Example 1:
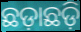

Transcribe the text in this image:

ଛଡ଼ାଛଡ଼ି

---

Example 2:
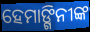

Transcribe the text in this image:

ହେମାଙ୍ଗିନୀଙ୍କ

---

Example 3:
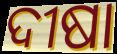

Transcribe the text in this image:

ଦୀଷା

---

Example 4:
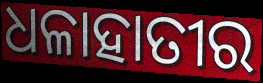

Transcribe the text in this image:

ଧଳାହାତୀର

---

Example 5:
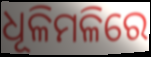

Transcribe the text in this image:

ଧୂଳିମଳିରେ